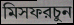
মিসফরচুন